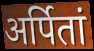
अर्पितां